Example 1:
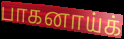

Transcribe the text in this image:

பாகனாய்க்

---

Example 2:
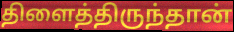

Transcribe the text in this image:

திளைத்திருந்தான்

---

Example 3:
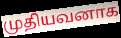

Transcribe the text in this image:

முதியவனாக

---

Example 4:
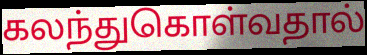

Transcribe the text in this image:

கலந்துகொள்வதால்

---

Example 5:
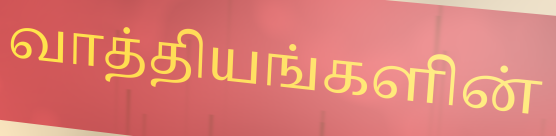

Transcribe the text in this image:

வாத்தியங்களின்